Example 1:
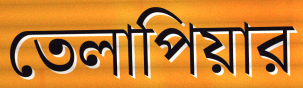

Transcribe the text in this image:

তেলাপিয়ার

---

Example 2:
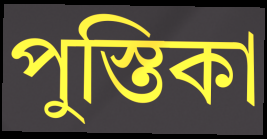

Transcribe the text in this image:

পুস্তিকা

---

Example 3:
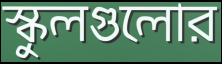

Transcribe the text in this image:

স্কুলগুলোর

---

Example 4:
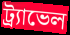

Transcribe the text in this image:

ট্র্যাভেল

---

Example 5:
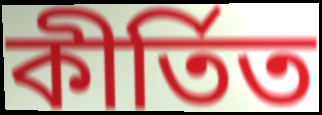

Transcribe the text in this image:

কীর্তিত